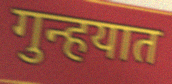
गुन्हयात